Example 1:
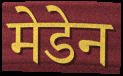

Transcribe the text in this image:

मेडेन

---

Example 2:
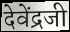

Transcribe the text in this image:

देवेंद्रजी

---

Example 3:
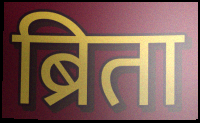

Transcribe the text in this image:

ब्रिता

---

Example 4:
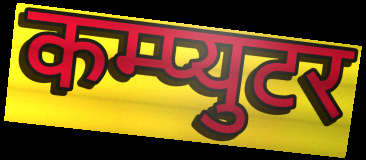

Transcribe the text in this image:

कम्प्युटर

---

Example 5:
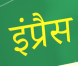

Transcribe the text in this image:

इंप्रैस